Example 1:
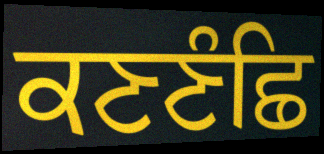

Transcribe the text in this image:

ਕਣਣੰਛਿ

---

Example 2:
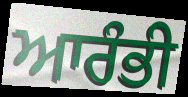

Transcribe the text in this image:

ਆਰੰਭੀ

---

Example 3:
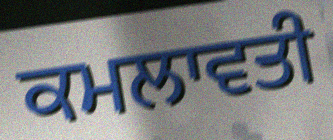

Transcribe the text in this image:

ਕਮਲਾਵਤੀ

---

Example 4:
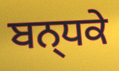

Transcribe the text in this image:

ਬਨ੍ਧਕੇ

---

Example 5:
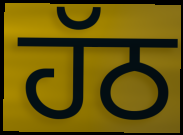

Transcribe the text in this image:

ਹੱਠ